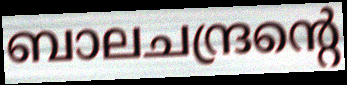
ബാലചന്ദ്രന്റെ